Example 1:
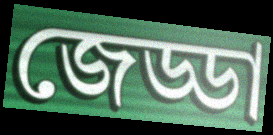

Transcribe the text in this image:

জেড্ডা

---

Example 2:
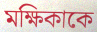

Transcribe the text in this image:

মক্ষিকাকে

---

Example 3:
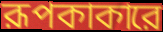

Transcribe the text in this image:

রূপকাকারে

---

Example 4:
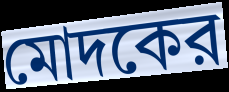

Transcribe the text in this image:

মোদকের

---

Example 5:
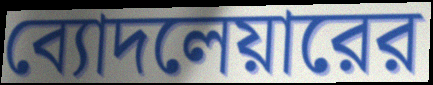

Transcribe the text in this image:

ব্যোদলেয়ারের